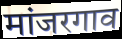
मांजरगाव